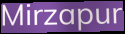
Mirzapur